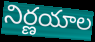
నిర్ణయాల